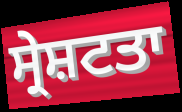
ਸ੍ਰੇਸ਼ਟਤਾ